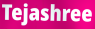
Tejashree